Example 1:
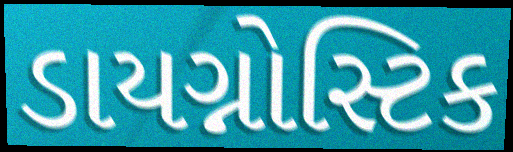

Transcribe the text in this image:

ડાયગ્નોસ્ટિક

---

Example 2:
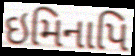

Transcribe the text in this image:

ઇમિનાપિ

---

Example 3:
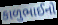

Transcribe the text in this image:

કાળુભાઈનો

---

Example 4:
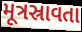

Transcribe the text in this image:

મૂત્રસ્રાવતા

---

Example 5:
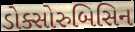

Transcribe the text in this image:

ડોક્સોરુબિસિન